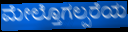
ಮೇಲ್ತೊಗಲ್ಪರೆಯ